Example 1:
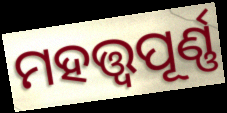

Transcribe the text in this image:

ମହତ୍ତ୍ଵପୂର୍ଣ୍ଣ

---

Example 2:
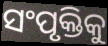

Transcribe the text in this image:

ସଂପୃକ୍ତିକୁ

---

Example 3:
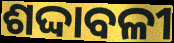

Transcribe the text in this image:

ଶଦ୍ଦାବଳୀ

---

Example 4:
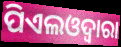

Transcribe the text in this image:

ପିଏଲଓଦ୍ୱାରା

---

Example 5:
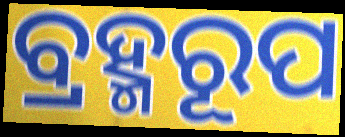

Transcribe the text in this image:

ବ୍ରହ୍ମରୂପ